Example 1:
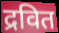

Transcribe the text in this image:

द्रवित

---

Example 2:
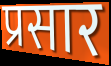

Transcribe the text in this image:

प्रसार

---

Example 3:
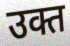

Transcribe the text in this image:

उक्त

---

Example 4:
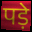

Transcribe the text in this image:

पड़े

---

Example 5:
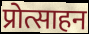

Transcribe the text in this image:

प्रोत्साहन